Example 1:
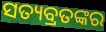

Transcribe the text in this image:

ସତ୍ୟବ୍ରତଙ୍କର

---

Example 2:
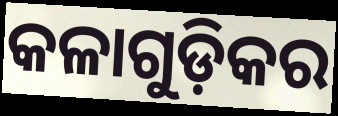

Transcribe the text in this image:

କଳାଗୁଡ଼ିକର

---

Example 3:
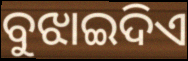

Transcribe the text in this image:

ବୁଝାଇଦିଏ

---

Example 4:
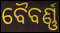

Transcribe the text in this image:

ବୈବର୍ଣ୍ଣ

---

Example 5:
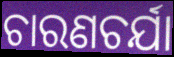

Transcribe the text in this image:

ଚାରଣଚର୍ଯା